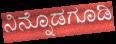
ನಿನ್ನೊಡಗೂಡಿ